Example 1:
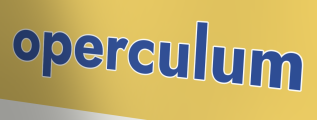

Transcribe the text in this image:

operculum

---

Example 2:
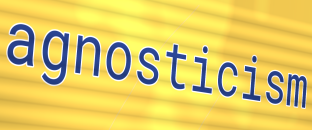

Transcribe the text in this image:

agnosticism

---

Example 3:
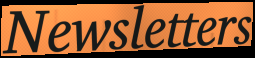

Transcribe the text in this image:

Newsletters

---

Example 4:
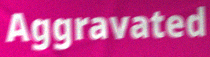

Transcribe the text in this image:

Aggravated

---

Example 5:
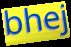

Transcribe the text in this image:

bhej